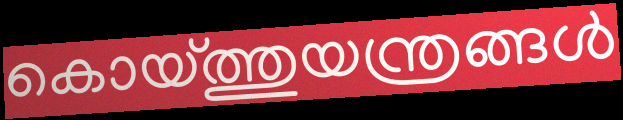
കൊയ്ത്തുയന്ത്രങ്ങൾ